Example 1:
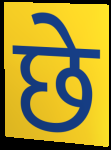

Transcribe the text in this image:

छे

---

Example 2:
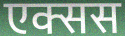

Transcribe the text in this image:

एक्सस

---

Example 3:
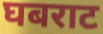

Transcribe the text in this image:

घबराट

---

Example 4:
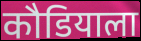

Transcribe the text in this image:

कौडियाला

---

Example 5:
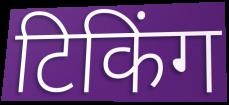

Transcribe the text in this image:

टिकिंग